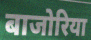
बाजोरिया